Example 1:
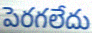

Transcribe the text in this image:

పెరగలేదు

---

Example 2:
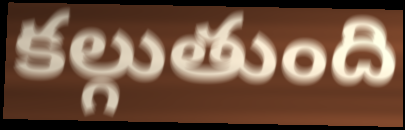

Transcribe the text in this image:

కల్గుతుంది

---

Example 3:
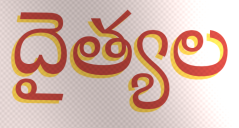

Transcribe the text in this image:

దైత్యల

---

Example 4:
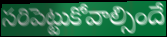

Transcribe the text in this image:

సరిపెట్టుకోవాల్సిందే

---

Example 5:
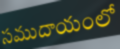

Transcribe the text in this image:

సముదాయంలో